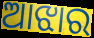
ଆଝାର